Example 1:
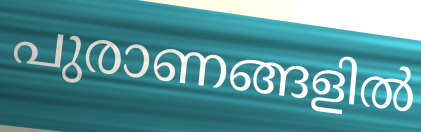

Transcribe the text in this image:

പുരാണങ്ങളിൽ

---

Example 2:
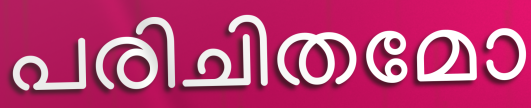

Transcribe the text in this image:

പരിചിതമോ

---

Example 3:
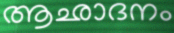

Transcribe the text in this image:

ആഛാദനം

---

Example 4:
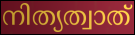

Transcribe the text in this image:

നിത്യത്വാത്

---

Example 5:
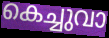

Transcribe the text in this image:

കെച്ചുവാ